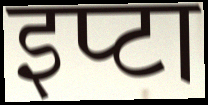
इप्टा